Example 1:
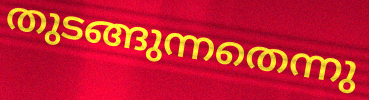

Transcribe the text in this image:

തുടങ്ങുന്നതെന്നു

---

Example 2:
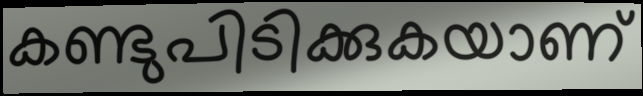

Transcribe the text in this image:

കണ്ടുപിടിക്കുകയാണ്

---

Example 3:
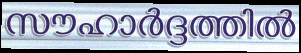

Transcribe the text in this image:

സൗഹാർദ്ദത്തിൽ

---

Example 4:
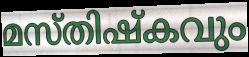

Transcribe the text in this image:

മസ്തിഷ്കവും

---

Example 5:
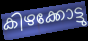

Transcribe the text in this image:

കിഴക്കോട്ടു